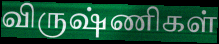
விருஷ்ணிகள்